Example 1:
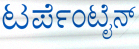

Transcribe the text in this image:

ಟರ್ಪೆಂಟೈನ್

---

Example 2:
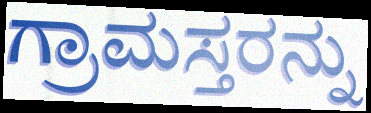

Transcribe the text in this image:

ಗ್ರಾಮಸ್ತರನ್ನು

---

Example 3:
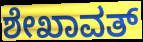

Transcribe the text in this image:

ಶೇಖಾವತ್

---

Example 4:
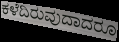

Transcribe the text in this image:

ಕಳೆದಿರುವುದಾದರೂ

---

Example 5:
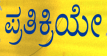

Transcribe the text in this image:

ಪ್ರತಿಕ್ರಿಯೇ